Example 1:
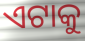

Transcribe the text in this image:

ଏଟାକୁ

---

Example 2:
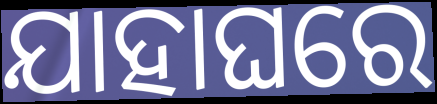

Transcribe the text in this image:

ଯାହାଘରେ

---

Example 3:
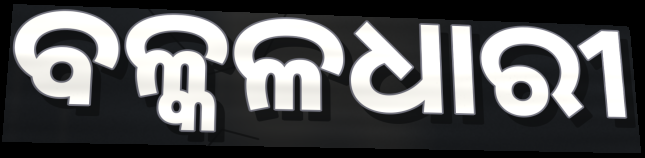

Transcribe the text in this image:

ବଳ୍କଳଧାରୀ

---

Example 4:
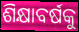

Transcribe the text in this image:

ଶିକ୍ଷାବର୍ଷକୁ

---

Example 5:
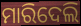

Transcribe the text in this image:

ମାରିଦେଲି